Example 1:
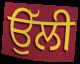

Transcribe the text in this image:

ਉੱਲੀ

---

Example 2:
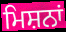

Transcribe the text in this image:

ਮਿਸ਼ਨਾਂ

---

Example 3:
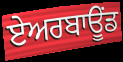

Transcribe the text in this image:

ਏਅਰਬਾਊਂਡ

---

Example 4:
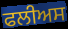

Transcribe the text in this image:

ਫਲੀਅਸ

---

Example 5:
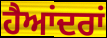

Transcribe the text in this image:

ਹੈਆਂਦਰਾਂ